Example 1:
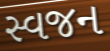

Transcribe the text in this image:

સ્વજન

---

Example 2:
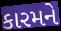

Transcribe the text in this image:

કારમને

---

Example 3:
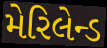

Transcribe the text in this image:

મેરિલેન્ડ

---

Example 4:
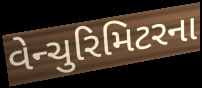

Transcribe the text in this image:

વેન્ચુરિમિટરના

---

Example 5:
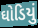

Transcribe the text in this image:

ઘોડિયું